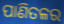
ପାଣିତଳର